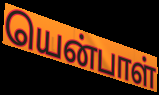
யென்பாள்